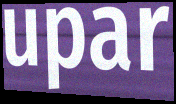
upar